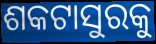
ଶକଟାସୁରକୁ